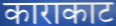
काराकाट